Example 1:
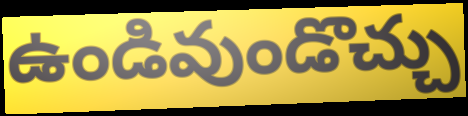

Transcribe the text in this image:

ఉండివుండొచ్చు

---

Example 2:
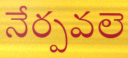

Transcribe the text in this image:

నేర్పవలె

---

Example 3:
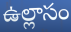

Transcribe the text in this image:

ఉల్లాసం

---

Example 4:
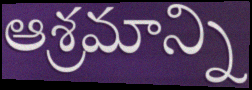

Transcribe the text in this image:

ఆశ్రమాన్ని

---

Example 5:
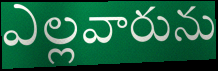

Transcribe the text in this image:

ఎల్లవారును